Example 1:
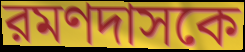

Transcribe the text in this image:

রমণদাসকে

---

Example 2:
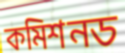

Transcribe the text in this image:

কমিশনড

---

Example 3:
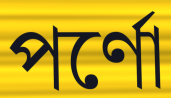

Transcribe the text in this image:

পর্ণো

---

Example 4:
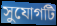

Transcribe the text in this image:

সুযোগটি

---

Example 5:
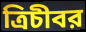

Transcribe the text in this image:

ত্রিচীবর